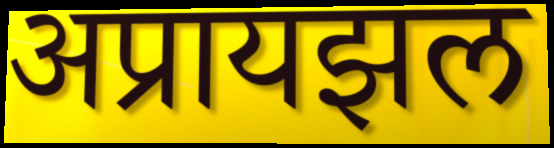
अप्रायझल